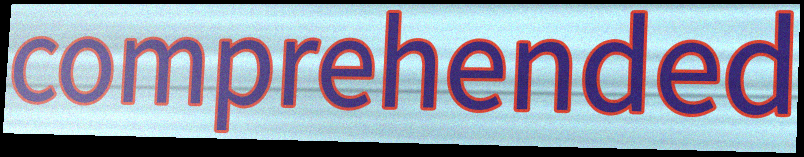
comprehended